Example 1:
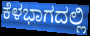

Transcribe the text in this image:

ಕೆಳಭಾಗದಲ್ಲಿ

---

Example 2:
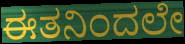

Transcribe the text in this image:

ಈತನಿಂದಲೇ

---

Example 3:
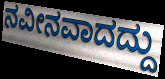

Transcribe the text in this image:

ನವೀನವಾದದ್ದು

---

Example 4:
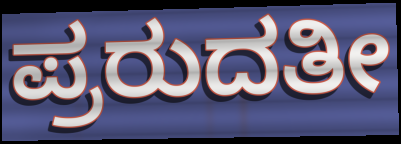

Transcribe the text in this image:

ಪ್ರರುದತೀ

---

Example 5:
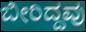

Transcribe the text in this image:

ಬೀರಿದ್ದವು